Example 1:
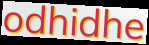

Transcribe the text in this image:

odhidhe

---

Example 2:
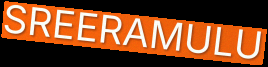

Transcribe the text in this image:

SREERAMULU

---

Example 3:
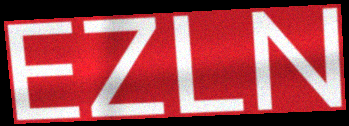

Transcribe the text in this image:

EZLN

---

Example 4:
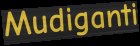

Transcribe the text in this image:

Mudiganti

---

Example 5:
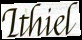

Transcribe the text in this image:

Ithiel